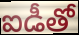
ఐడీతో